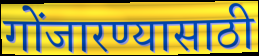
गोंजारण्यासाठी